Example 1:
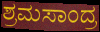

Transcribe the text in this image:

ಶ್ರಮಸಾಂದ್ರ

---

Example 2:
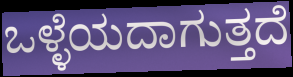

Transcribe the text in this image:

ಒಳ್ಳೆಯದಾಗುತ್ತದೆ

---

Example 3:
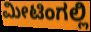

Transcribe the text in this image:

ಮೀಟಿಂಗಲ್ಲಿ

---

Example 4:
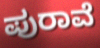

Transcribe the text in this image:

ಪುರಾವೆ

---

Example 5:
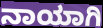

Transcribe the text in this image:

ನಾಯಾಗಿ